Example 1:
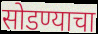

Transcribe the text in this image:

सोडण्याचा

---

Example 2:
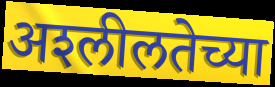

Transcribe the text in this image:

अश्‍लीलतेच्या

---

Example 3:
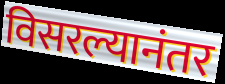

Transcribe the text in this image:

विसरल्यानंतर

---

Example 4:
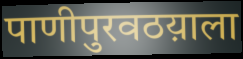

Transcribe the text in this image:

पाणीपुरवठय़ाला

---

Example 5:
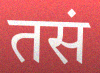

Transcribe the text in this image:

तसं